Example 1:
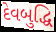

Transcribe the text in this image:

દેવબુદ્ધિ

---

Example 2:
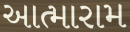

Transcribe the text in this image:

આત્મારામ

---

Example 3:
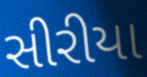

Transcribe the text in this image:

સીરીયા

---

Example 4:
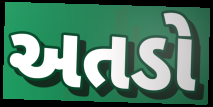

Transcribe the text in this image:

અતડો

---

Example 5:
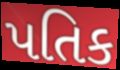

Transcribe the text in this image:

પતિક